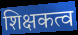
शिक्षकत्व